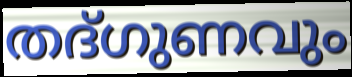
തദ്ഗുണവും